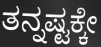
ತನ್ನಷ್ಟಕ್ಕೇ